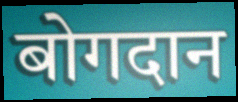
बोगदान